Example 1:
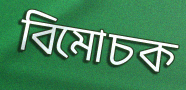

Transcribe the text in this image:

বিমোচক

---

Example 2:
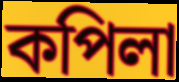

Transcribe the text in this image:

কপিলা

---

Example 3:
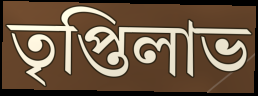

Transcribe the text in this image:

তৃপ্তিলাভ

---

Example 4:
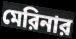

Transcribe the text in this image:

মেরিনার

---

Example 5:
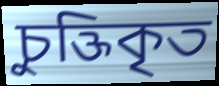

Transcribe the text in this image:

চুক্তিকৃত